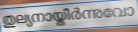
തുല്യനായ്തീർന്നുവോ